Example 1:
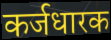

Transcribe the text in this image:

कर्जधारक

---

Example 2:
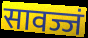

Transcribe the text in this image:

सावज्जं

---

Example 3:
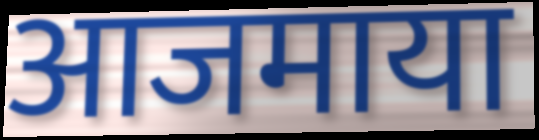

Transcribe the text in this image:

आजमाया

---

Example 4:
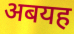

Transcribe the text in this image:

अबयह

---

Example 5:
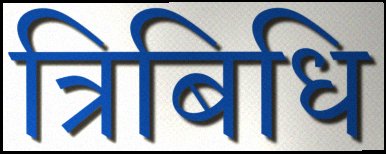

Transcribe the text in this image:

त्रिबिधि